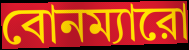
বোনম্যারো